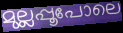
മുല്ലപ്പൂപോലെ